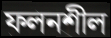
ফলনশীল